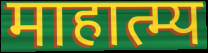
माहात्म्य